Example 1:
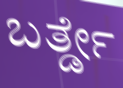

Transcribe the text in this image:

ಬರ್ತ್ಡೇ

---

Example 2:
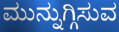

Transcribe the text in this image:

ಮುನ್ನುಗ್ಗಿಸುವ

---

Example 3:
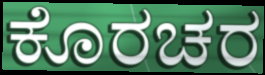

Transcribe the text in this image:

ಕೊರಚರ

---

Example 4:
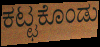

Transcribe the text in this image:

ಕಟ್ಟಕೊಂಡು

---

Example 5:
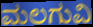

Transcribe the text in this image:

ಮಲಗುವಿ